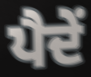
ਪੈਦੇਂ